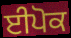
ਈਪੋਕ